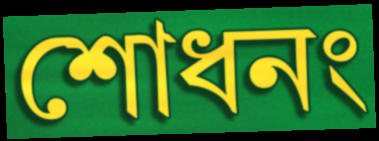
শোধনং